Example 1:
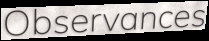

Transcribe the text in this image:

Observances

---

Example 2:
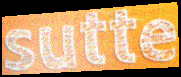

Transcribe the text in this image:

sutte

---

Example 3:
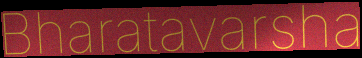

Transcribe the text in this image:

Bharatavarsha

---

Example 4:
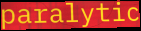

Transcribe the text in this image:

paralytic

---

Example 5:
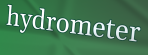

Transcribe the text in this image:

hydrometer